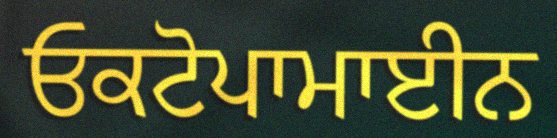
ਓਕਟੋਪਾਮਾਈਨ